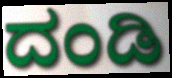
ದಂಡಿ